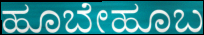
ಹೂಬೇಹೂಬ